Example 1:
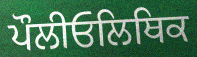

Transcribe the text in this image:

ਪੌਲੀਓਲਿਥਿਕ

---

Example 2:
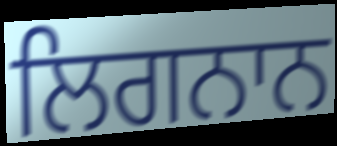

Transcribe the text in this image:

ਲਿਗਨਾਨ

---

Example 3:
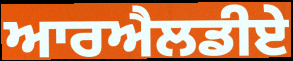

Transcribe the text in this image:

ਆਰਐਲਡੀਏ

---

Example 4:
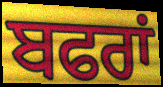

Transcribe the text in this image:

ਬਫਰਾਂ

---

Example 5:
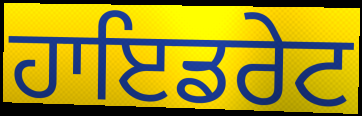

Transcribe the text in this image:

ਹਾਇਡਰੇਟ